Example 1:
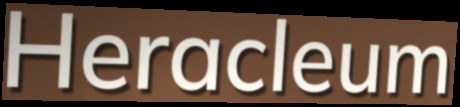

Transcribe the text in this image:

Heracleum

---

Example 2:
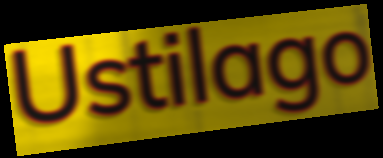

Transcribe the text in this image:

Ustilago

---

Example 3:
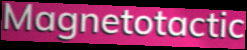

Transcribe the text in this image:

Magnetotactic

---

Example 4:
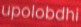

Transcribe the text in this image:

upolobdhi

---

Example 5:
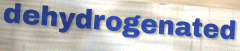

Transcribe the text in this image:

dehydrogenated